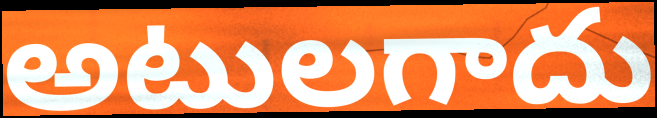
అటులగాదు